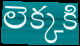
లెక్కకి